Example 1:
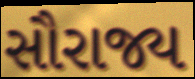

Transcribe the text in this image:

સૌરાજ્ય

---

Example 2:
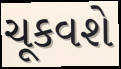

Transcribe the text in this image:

ચૂકવશે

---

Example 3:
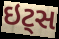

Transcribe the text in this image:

ઇટ્સ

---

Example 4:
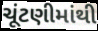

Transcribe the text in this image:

ચૂંટણીમાંથી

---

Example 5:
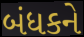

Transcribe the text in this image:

બંધકને